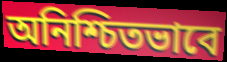
অনিশ্চিতভাবে